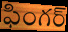
ఫింగర్